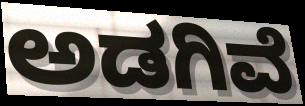
ಅಡಗಿವೆ